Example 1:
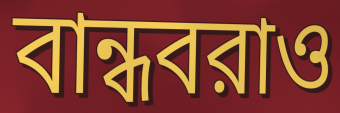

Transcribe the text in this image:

বান্ধবরাও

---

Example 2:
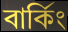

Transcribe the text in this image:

বার্কিং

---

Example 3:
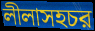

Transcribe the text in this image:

লীলাসহচর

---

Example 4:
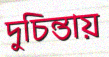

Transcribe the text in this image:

দুচিন্তায়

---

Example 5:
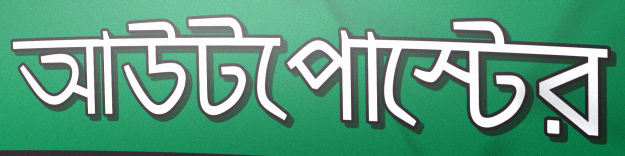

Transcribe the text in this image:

আউটপোস্টের